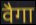
वैगा